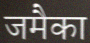
जमैका